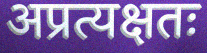
अप्रत्यक्षतः